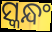
ସ୍କନ୍ଧଂ